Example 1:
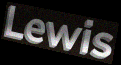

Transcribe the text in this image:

Lewis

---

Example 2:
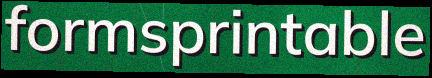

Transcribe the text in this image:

formsprintable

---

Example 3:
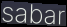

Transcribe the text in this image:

sabar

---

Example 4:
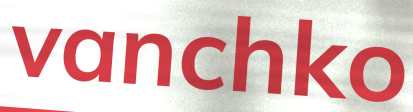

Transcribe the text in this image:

vanchko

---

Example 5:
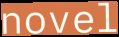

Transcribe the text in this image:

novel